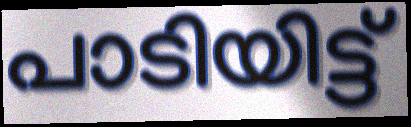
പാടിയിട്ട്